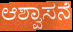
ಆಶ್ವಾಸನೆ